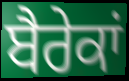
ਬੈਰੇਕਾਂ